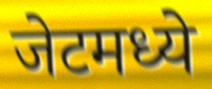
जेटमध्ये